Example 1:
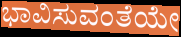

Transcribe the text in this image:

ಭಾವಿಸುವಂತೆಯೇ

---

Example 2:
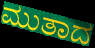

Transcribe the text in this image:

ಮುತಾದ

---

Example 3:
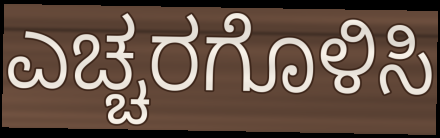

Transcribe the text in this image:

ಎಚ್ಚರಗೊಳಿಸಿ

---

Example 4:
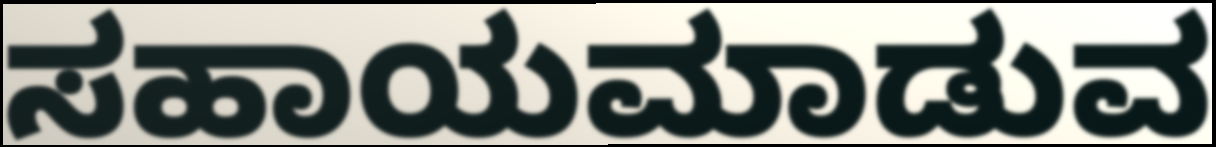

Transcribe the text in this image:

ಸಹಾಯಮಾಡುವ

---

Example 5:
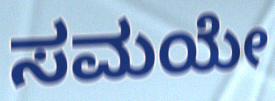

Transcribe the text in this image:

ಸಮಯೇ